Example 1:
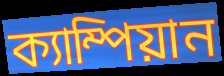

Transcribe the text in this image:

ক্যাম্পিয়ান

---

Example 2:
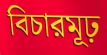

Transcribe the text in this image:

বিচারমূঢ়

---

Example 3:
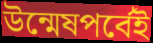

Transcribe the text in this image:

উন্মেষপর্বেই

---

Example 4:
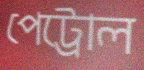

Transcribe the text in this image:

পেট্রোল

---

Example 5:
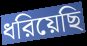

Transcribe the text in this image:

ধরিয়েছি